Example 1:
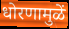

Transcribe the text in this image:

धोरणामुळें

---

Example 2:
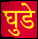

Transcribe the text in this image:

घुडे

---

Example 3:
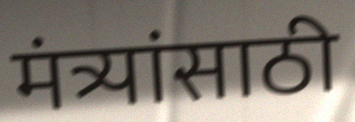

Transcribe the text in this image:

मंत्र्यांसाठी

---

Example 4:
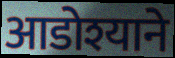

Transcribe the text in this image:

आडोश्याने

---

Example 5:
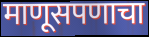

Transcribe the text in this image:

माणूसपणाचा